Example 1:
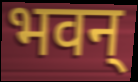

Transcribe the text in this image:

भवन्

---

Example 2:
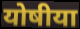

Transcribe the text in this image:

योषीया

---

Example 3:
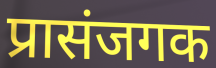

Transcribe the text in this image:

प्रासंजगक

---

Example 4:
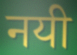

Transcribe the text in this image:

नयी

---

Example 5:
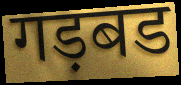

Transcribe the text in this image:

गड़बड